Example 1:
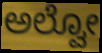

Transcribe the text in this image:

ಅಲ್ವೋ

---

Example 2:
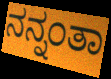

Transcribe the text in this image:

ನನ್ನಂತಾ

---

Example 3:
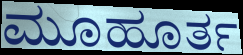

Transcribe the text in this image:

ಮೂಹೂರ್ತ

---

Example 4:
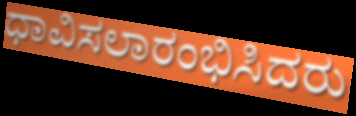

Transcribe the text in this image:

ಧಾವಿಸಲಾರಂಭಿಸಿದರು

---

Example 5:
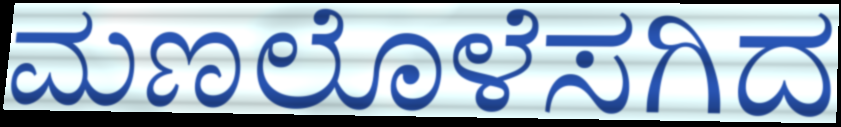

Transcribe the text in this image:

ಮಣಲೊಳೆಸಗಿದ